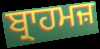
ਬ੍ਰਾਹਮਜ਼